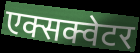
एक्सक्वेटर